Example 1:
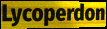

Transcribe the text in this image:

Lycoperdon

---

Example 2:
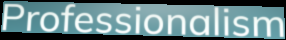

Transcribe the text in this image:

Professionalism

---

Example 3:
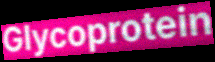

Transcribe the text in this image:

Glycoprotein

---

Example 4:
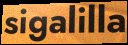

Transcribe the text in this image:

sigalilla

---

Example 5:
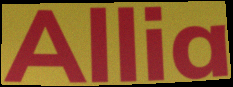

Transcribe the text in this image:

Allia